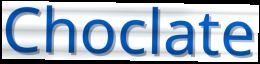
Choclate